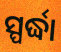
ସ୍ପର୍ଦ୍ଧା